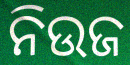
ନିଉଜ